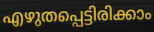
എഴുതപ്പെട്ടിരിക്കാം